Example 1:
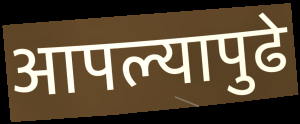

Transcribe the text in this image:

आपल्यापुढे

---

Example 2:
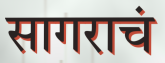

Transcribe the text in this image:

सागराचं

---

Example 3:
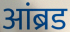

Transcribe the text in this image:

आंब्रड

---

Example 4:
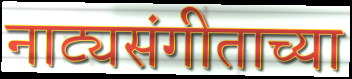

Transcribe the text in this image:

नाट्यसंगीताच्या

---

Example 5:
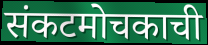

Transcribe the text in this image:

संकटमोचकाची